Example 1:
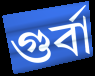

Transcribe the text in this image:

গুর্বা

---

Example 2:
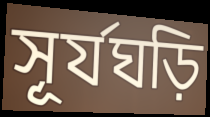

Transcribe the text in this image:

সূর্যঘড়ি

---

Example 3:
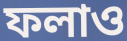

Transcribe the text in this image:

ফলাও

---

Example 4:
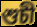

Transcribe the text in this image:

শুচী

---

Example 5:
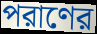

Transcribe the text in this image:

পরাণের